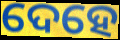
ଦେହେ